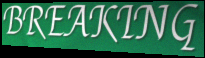
BREAKING